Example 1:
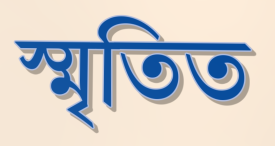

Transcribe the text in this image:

স্মৃতিত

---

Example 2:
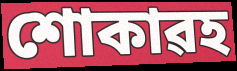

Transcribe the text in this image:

শোকাৱহ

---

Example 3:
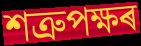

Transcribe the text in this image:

শত্ৰুপক্ষৰ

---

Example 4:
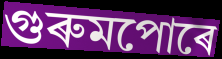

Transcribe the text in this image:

গুৰুমপোৰে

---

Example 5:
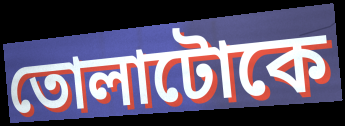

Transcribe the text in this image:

তোলাটোকে